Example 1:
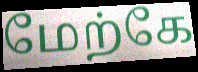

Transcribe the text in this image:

மேற்கே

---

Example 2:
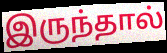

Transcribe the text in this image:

இருந்தால்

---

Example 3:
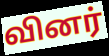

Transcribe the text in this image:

வினர்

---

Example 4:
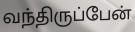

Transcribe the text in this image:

வந்திருப்பேன்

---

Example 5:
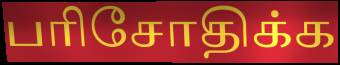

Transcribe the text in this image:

பரிசோதிக்க